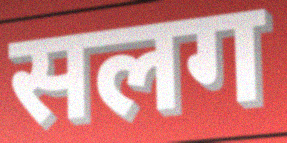
सलग